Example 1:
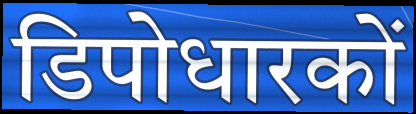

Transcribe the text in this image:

डिपोधारकों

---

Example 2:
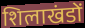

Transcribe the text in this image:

शिलाखंडों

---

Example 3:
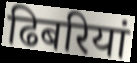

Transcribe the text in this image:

ढिबरियां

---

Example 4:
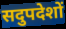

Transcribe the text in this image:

सदुपदेशों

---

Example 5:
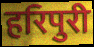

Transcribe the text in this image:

हरिपुरी